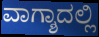
ವಾಗ್ಶಾದಲ್ಲಿ